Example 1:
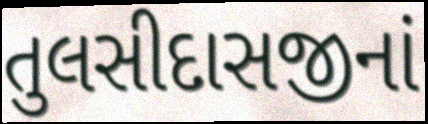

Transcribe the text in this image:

તુલસીદાસજીનાં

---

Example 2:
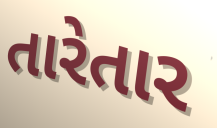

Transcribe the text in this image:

તારેતાર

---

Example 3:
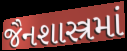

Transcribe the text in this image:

જૈનશાસ્ત્રમાં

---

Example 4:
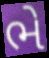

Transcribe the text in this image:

ભે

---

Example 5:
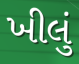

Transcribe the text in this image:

ખીલું